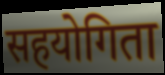
सहयोगिता